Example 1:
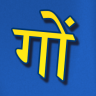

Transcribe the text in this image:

गों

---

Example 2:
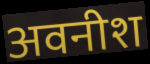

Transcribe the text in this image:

अवनीश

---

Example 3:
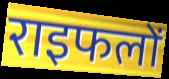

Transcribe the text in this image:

राइफलों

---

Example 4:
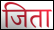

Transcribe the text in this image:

जिता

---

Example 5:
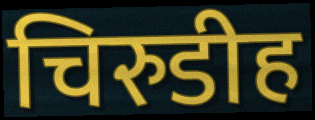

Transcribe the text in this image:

चिरुडीह